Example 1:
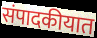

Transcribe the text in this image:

संपादकीयात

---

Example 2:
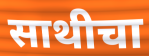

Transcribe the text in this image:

साथीचा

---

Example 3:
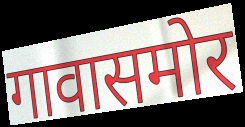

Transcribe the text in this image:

गावासमोर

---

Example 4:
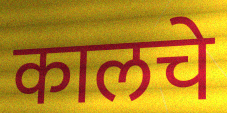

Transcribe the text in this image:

कालचे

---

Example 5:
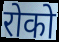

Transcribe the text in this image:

रोको